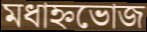
মধাহ্নভোজ